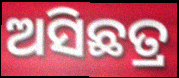
ଅସିଛତ୍ର